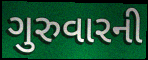
ગુરુવારની